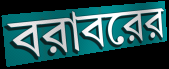
বরাবরের